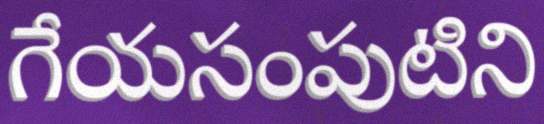
గేయసంపుటిని